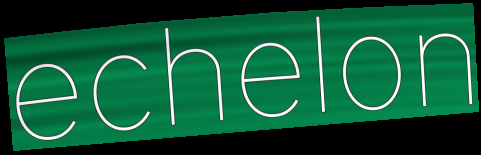
echelon